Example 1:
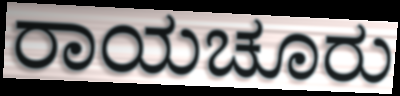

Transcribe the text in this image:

ರಾಯಚೂರು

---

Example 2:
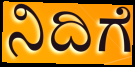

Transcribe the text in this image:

ನಿದಿಗೆ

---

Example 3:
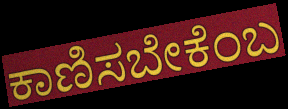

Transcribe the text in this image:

ಕಾಣಿಸಬೇಕೆಂಬ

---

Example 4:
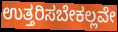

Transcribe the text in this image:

ಉತ್ತರಿಸಬೇಕಲ್ಲವೇ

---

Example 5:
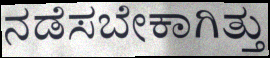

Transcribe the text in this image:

ನಡೆಸಬೇಕಾಗಿತ್ತು